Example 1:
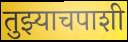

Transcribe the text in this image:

तुझ्याचपाशी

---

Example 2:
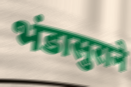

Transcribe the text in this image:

भंडासुराने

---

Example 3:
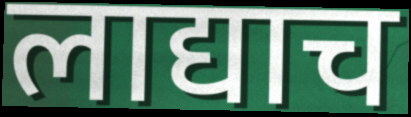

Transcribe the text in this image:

लाद्याच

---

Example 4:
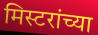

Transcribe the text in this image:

मिस्टरांच्या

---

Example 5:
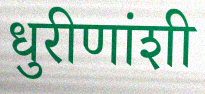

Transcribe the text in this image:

धुरीणांशी